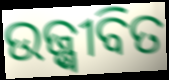
ଉଜ୍ଜ୍ୱୀବିତ